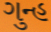
ગુન્હ